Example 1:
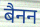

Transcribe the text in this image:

बैनन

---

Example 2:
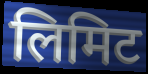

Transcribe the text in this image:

लिमिट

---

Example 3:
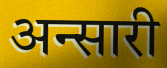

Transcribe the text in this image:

अन्सारी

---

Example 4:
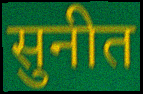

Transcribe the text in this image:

सुनीत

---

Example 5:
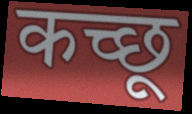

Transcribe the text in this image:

कच्छू